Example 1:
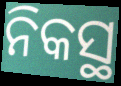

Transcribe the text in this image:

ନିକସ୍ଥ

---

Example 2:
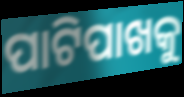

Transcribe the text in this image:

ପାଟିପାଖକୁ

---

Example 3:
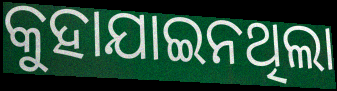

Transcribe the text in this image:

କୁହାଯାଇନଥିଲା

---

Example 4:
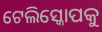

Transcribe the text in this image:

ଟେଲିସ୍କୋପକୁ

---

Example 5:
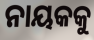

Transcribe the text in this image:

ନାୟକକୁ